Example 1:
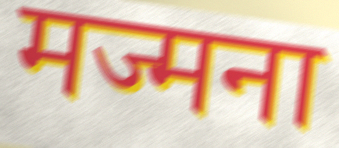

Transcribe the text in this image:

मज्मना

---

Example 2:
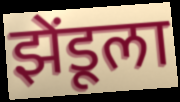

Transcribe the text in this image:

झेंडूला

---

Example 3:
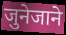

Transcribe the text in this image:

जुनेजाने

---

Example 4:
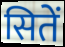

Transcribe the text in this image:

सितें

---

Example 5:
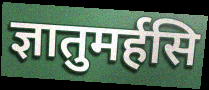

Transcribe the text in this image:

ज्ञातुमर्हसि